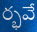
ర్భవే